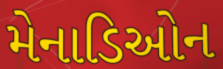
મેનાડિઓન